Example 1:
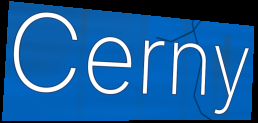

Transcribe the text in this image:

Cerny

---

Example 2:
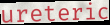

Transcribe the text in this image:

ureteric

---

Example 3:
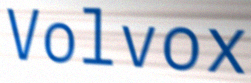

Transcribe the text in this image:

Volvox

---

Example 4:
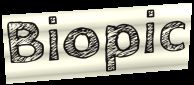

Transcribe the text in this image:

Biopic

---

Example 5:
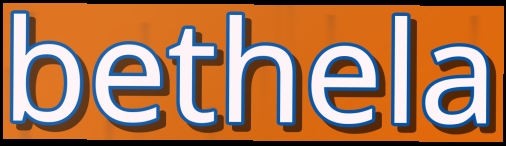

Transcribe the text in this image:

bethela